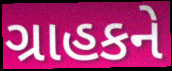
ગ્રાહકને